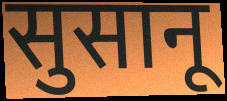
सुसानू